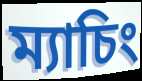
ম্যাচিং